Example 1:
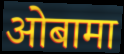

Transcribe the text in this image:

ओबामा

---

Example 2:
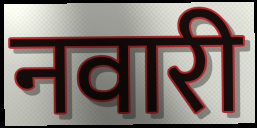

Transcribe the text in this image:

नवारी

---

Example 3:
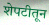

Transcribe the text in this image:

शेपटीतून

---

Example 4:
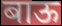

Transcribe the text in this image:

बाऊ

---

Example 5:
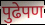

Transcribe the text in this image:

पुढेपण